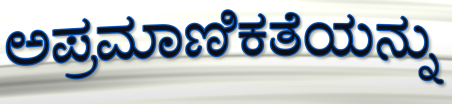
ಅಪ್ರಮಾಣಿಕತೆಯನ್ನು